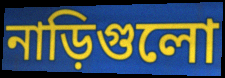
নাড়িগুলো